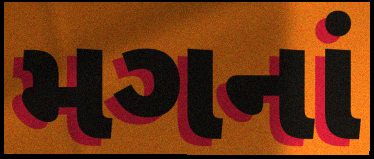
મગનાં